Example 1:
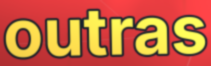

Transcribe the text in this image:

outras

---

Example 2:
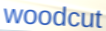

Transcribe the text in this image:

woodcut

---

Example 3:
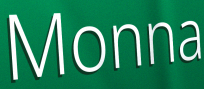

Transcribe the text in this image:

Monna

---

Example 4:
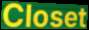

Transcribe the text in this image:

Closet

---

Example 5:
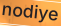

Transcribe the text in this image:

nodiye